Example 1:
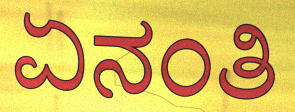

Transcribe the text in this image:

ಏನಂತಿ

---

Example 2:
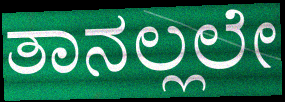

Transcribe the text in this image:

ತಾನಲ್ಲಲೇ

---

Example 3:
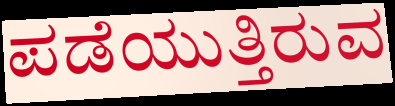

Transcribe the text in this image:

ಪಡೆಯುತ್ತಿರುವ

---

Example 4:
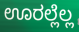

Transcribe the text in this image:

ಊರಲ್ಲೆಲ್ಲ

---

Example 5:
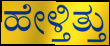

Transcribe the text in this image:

ಹೇಳ್ತಿತ್ತು